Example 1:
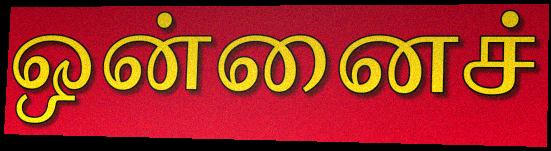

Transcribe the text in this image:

ஒன்னைச்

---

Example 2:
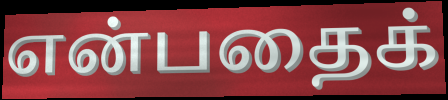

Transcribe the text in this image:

என்பதைக்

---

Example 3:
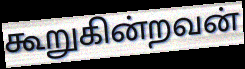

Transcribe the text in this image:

கூறுகின்றவன்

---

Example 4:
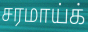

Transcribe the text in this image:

சரமாய்க்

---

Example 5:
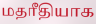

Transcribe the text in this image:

மதரீதியாக